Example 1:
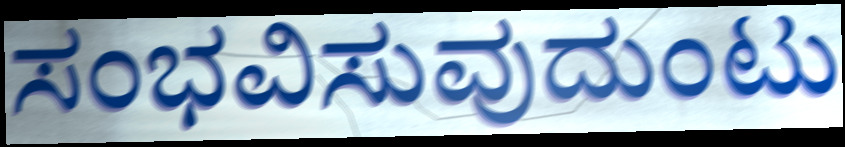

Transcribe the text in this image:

ಸಂಭವಿಸುವುದುಂಟು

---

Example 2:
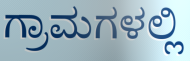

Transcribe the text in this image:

ಗ್ರಾಮಗಳಲ್ಲಿ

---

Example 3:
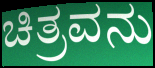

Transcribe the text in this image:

ಚಿತ್ರವನು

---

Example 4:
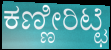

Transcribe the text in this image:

ಕಣ್ಣೀರಿಟ್ಟೆ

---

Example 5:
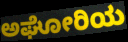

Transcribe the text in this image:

ಅಘೋರಿಯ